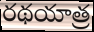
రథయాత్ర